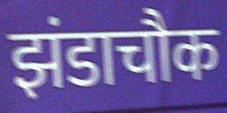
झंडाचौक